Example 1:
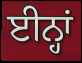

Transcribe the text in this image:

ਈਨ੍ਹਾਂ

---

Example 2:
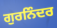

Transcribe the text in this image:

ਗੁਰਨਿੰਦਰ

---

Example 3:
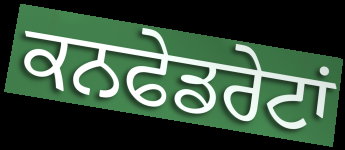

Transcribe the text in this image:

ਕਨਫੇਡਰੇਟਾਂ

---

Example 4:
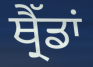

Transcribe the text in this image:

ਥ੍ਰੈੱਡਾਂ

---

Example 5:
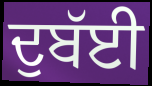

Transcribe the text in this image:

ਦੁਬੱਈ